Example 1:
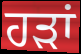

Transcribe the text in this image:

ਹੜਾਂ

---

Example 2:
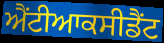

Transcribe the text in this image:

ਐਂਟੀਆਕਸੀਡੈਂਟ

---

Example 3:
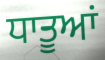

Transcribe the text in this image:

ਧਾਤੂਆਂ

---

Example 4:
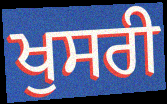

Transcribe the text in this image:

ਖੁਸਰੀ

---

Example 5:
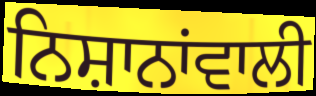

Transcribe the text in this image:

ਨਿਸ਼ਾਨਾਂਵਾਲੀ